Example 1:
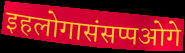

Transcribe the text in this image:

इहलोगासंसप्पओगे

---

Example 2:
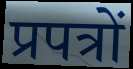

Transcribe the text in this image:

प्रपत्रों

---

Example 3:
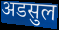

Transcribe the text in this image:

अडसुल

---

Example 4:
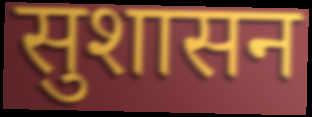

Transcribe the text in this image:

सुशासन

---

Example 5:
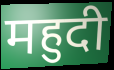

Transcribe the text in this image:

महुदी